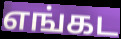
எங்கட